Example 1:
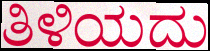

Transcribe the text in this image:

ತಿಳಿಯದು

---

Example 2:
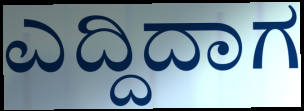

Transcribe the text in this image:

ಎದ್ದಿದಾಗ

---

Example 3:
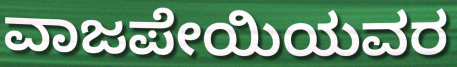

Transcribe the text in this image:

ವಾಜಪೇಯಿಯವರ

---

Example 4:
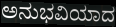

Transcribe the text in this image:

ಅನುಭವಿಯಾದ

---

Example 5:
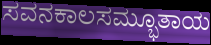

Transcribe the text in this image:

ಸವನಕಾಲಸಮ್ಭೂತಾಯ